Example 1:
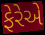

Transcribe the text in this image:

ફેરેએ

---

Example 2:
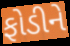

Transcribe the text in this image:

ફોડીને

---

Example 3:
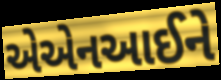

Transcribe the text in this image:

એએનઆઈને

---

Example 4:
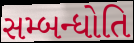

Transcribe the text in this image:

સમ્બન્ધોતિ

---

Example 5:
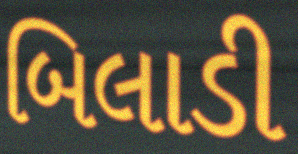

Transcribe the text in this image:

બિલાડી